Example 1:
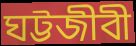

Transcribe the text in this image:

ঘট্টজীবী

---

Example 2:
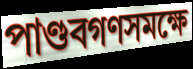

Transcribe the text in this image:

পাণ্ডবগণসমক্ষে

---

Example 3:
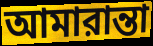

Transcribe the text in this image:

আমারান্তা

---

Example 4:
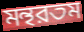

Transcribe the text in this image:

মন্থরতম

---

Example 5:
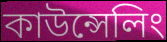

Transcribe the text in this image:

কাউন্সেলিং